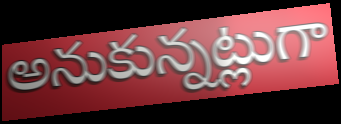
అనుకున్నట్లుగా